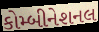
કોમ્બીનેશનલ